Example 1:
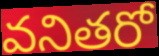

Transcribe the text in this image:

వనితరో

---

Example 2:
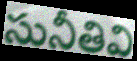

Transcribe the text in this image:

సునీతివి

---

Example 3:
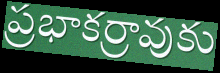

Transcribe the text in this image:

ప్రభాకర్రావుకు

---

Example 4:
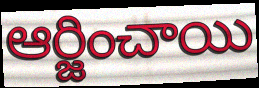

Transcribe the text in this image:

ఆర్జించాయి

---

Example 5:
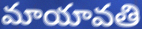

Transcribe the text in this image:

మాయావతి